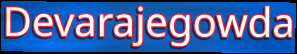
Devarajegowda